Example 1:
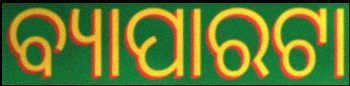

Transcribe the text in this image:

ବ୍ୟାପାରଟା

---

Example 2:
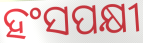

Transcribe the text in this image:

ହଂସପକ୍ଷୀ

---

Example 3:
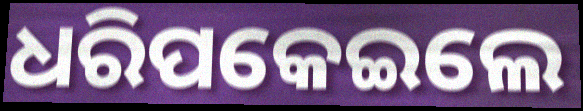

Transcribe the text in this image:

ଧରିପକେଇଲେ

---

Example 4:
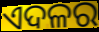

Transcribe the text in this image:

ଏଦଳର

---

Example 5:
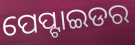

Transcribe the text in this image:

ପେପ୍ଟାଇଡର